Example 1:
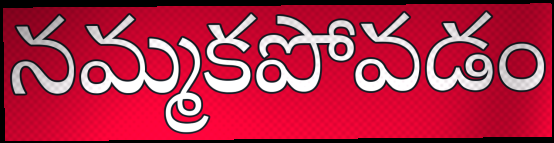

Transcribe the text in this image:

నమ్మకపోవడం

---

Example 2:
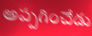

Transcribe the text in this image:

అప్పగించేడు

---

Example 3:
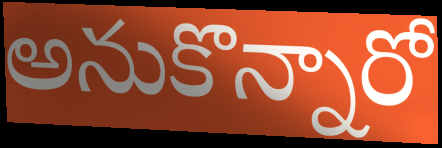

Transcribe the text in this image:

అనుకొన్నారో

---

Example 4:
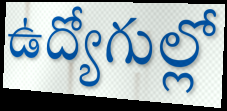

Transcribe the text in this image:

ఉద్యోగుల్లో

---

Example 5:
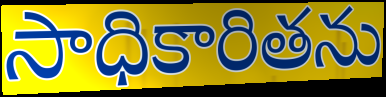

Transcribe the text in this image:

సాధికారితను